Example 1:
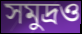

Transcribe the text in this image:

সমুদ্রও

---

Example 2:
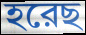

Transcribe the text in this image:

হরেছ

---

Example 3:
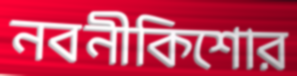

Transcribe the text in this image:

নবনীকিশোর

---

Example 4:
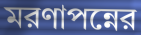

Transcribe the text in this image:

মরণাপন্নের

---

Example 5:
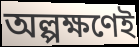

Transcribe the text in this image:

অল্পক্ষণেই